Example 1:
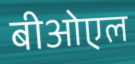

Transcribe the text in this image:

बीओएल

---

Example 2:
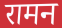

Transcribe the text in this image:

रामन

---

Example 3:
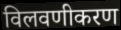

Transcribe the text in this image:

विलवणीकरण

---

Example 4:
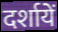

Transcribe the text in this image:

दर्शायें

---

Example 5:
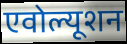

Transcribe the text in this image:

एवोल्यूशन